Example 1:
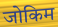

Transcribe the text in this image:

जोकिम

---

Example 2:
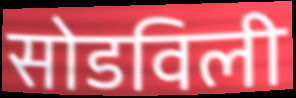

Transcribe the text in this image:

सोडविली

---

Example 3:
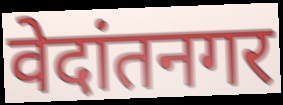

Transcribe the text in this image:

वेदांतनगर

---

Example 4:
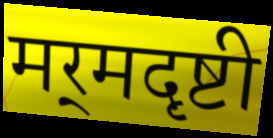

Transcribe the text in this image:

मर्मदृष्टी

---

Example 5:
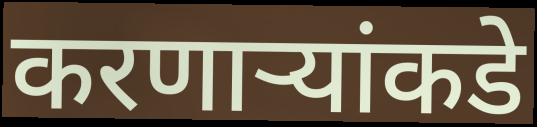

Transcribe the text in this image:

करणाऱ्यांकडे